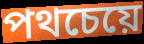
পথচেয়ে